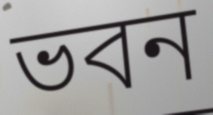
ভবন